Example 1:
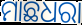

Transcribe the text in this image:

ମାଛଧରା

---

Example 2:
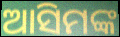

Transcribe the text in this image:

ଆସିମଙ୍କ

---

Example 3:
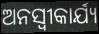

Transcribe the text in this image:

ଅନସ୍ୱୀକାର୍ଯ୍ୟ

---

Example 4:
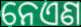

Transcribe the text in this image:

ନେଏଣ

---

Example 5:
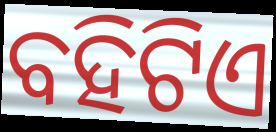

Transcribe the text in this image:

ବହିଟିଏ